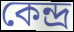
কেন্দ্র